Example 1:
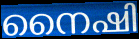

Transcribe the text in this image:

നൈഷി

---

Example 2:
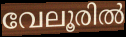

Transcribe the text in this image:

വേലൂരിൽ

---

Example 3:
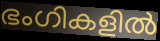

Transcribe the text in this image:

ഭംഗികളിൽ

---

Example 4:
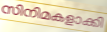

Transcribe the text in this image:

സിനിമകളാക്കി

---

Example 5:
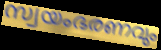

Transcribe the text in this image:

സ്വയംഭരണവും